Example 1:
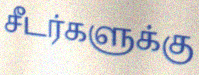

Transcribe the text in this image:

சீடர்களுக்கு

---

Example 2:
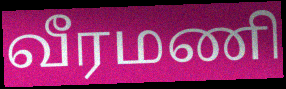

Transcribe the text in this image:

வீரமணி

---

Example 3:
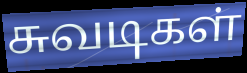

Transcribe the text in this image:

சுவடிகள்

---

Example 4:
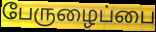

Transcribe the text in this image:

பேருழைப்பை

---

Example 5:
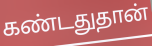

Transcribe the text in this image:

கண்டதுதான்